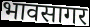
भावसागर